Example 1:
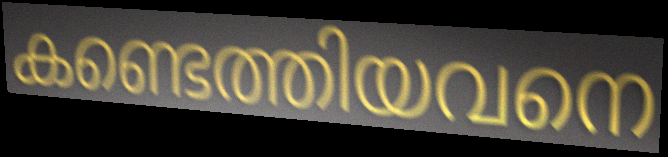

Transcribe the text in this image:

കണ്ടെത്തിയവനെ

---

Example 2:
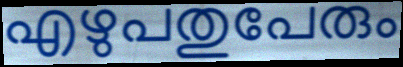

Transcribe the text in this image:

എഴുപതുപേരും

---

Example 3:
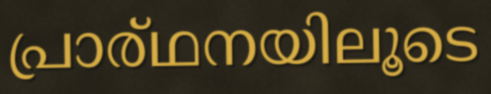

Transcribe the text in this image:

പ്രാര്ഥനയിലൂടെ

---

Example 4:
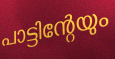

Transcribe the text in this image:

പാട്ടിന്റേയും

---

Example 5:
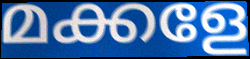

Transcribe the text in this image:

മക്കളേ